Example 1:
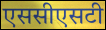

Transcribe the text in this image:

एससीएसटी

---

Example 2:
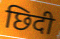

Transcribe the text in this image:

छिदी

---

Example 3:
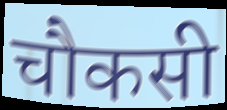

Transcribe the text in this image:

चौकसी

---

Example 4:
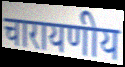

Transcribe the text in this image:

चारायणीय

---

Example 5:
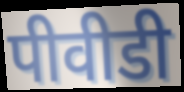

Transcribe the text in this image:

पीवीडी